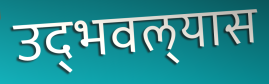
उद्भवल्यास